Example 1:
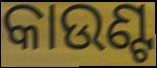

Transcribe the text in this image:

କାଉଣ୍ଟ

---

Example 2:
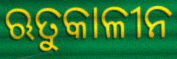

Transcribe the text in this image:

ଋତୁକାଳୀନ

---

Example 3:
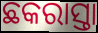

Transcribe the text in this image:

ଛକରାସ୍ତା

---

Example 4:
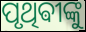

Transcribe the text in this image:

ପୃଥିଵୀଙ୍କୁ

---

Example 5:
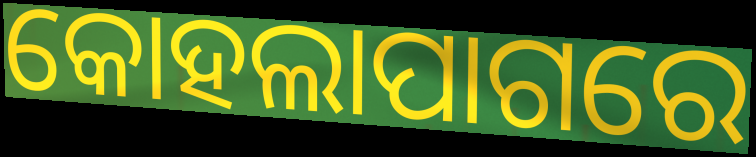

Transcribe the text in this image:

କୋହଲାପାଗରେ